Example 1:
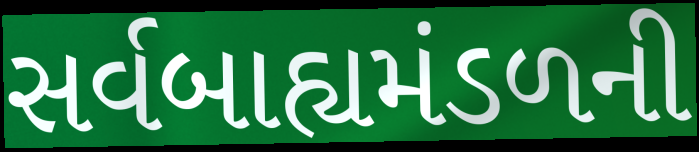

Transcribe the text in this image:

સર્વબાહ્યમંડળની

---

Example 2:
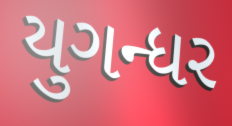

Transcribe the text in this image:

યુગન્ધર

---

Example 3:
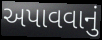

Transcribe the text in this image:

અપાવવાનું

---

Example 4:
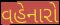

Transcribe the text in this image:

વહેનારો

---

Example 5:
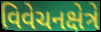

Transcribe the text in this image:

વિવેચનક્ષેત્રે